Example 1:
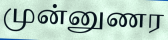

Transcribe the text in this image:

முன்னுணர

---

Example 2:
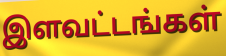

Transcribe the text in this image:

இளவட்டங்கள்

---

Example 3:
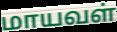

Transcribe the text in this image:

மாயவள்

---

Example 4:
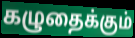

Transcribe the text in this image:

கழுதைக்கும்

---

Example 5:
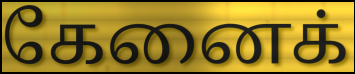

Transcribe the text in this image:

கேனைக்